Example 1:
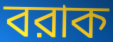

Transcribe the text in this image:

বরাক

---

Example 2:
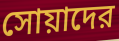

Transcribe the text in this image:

সোয়াদের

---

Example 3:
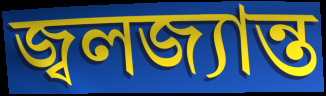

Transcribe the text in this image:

জ্বলজ্যান্ত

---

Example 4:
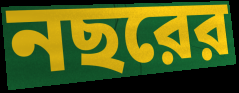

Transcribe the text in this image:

নছরের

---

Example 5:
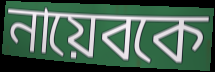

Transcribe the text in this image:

নায়েবকে